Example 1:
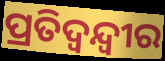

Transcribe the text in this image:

ପ୍ରତିଦ୍ବନ୍ଦ୍ବୀର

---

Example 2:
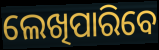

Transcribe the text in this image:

ଲେଖିପାରିବେ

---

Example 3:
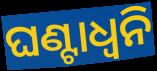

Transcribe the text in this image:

ଘଣ୍ଟାଧ୍ୱନି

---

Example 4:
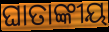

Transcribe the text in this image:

ଘାତାଙ୍କୀୟ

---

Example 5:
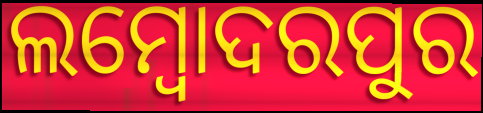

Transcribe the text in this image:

ଲମ୍ବୋଦରପୁର